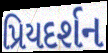
પ્રિયદર્શન